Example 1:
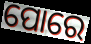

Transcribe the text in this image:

ପୋରେ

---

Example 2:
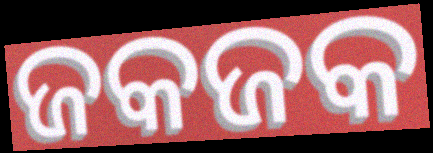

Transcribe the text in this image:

ଜକଜକ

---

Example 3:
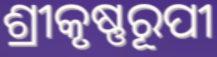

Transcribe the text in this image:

ଶ୍ରୀକୃଷ୍ଣରୂପୀ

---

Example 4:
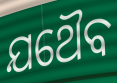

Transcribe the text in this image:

ଯଥୈବ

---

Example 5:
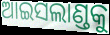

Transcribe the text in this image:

ଆଇସଲାଣ୍ଡକୁ